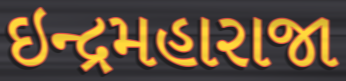
ઇન્દ્રમહારાજા